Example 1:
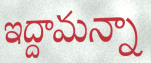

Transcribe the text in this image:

ఇద్దామన్నా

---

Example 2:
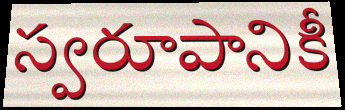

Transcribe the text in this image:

స్వరూపానికీ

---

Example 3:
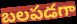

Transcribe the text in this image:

బలపడగా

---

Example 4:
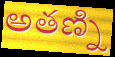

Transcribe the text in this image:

అతణ్ని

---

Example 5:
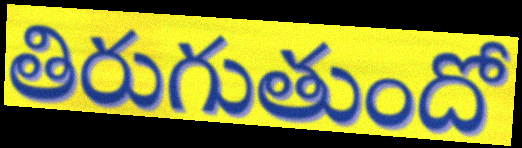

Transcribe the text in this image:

తిరుగుతుందో